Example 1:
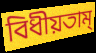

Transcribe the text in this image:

বিধীয়তাম্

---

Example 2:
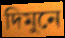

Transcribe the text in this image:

দিমুনে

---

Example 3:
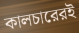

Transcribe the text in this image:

কালচারেরই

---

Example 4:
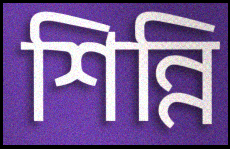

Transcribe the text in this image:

শিন্নি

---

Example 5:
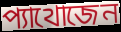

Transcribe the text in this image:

প্যাথোজেন